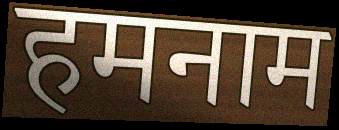
हमनाम